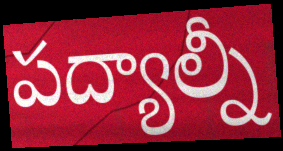
పద్యాల్నీ